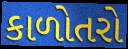
કાળોતરો